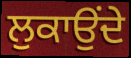
ਲੁਕਾਉਂਦੇ